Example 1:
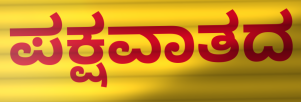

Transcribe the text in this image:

ಪಕ್ಷವಾತದ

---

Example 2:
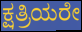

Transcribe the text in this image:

ಕ್ಷತ್ರಿಯರೇ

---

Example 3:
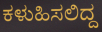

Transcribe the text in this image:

ಕಳುಹಿಸಲಿದ್ದ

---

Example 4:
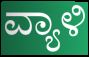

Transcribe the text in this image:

ವ್ಯಾಳಿ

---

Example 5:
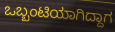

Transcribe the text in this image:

ಒಬ್ಬಂಟಿಯಾಗಿದ್ದಾಗ